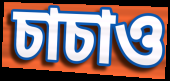
চাচাও